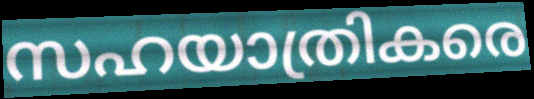
സഹയാത്രികരെ